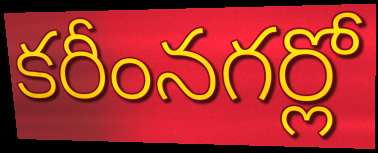
కరీంనగర్లో